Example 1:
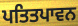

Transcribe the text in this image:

ਪਤਿਤਪਾਵਨ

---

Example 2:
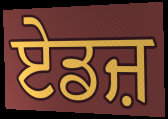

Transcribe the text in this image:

ਏਡਜ਼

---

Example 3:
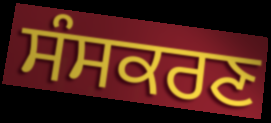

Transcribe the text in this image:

ਸੰਸਕਰਣ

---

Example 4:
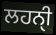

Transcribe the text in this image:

ਲਹਨੑੀ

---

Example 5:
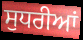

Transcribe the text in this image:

ਸੁਧਰੀਆਂ